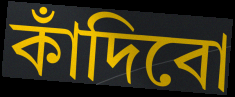
কাঁদিবো